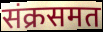
संक्रसमत